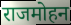
राजमोहन